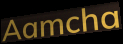
Aamcha